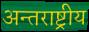
अन्तराष्ट्रीय